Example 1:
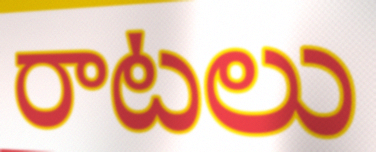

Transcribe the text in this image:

రాటలు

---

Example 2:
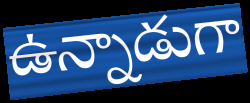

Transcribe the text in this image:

ఉన్నాడుగా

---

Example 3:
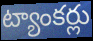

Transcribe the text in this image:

ట్యాంకర్లు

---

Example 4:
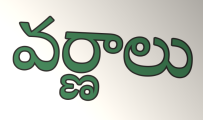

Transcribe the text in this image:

వర్ణాలు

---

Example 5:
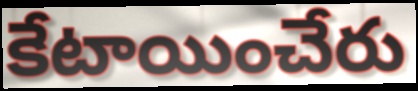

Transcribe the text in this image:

కేటాయించేరు